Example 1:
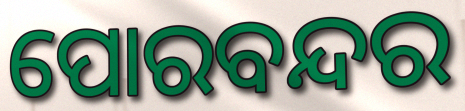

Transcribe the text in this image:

ପୋରବନ୍ଦର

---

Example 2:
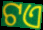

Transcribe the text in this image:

ଟଏ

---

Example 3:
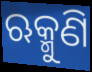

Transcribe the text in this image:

ଋକ୍ମୁଣି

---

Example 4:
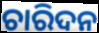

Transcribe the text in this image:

ଚାରିଦନ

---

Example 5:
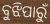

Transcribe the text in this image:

ବୁଝିପାରୁଁ